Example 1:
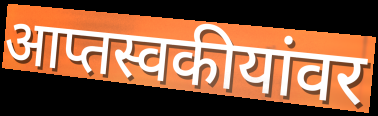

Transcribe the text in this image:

आप्तस्वकीयांवर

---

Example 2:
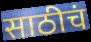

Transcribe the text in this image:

साठीचं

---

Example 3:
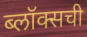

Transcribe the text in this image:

ब्लॉक्सची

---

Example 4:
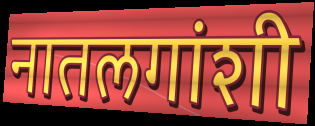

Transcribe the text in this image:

नातलगांशी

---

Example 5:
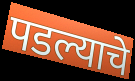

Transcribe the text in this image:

पडल्याचे